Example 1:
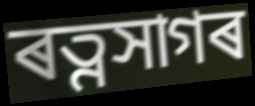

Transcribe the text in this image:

ৰত্নসাগৰ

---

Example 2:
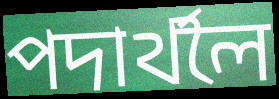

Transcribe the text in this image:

পদাৰ্থলৈ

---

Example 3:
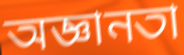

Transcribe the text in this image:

অজ্ঞানতা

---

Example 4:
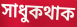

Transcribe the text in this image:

সাধুকথাক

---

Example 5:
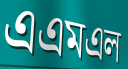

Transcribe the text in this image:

এএমএল